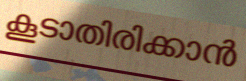
കൂടാതിരിക്കാൻ